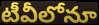
టీవీలోనూ